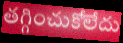
తగ్గించుకోలేదు